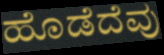
ಹೊಡೆದೆವು